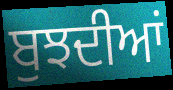
ਬੁਝਦੀਆਂ